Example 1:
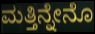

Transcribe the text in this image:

ಮತ್ತಿನ್ನೇನೊ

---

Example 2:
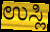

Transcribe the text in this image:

ಉಸ್ಲಿ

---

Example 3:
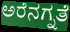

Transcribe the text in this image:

ಅರೆನಗ್ನತೆ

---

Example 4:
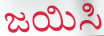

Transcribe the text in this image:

ಜಯಿಸಿ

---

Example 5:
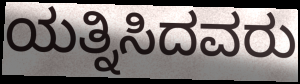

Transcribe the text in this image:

ಯತ್ನಿಸಿದವರು